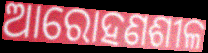
ଆରୋହଣଶୀଳ